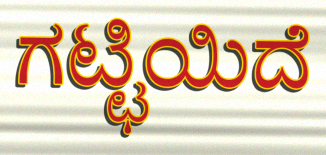
ಗಟ್ಟಿಯಿದೆ